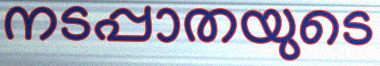
നടപ്പാതയുടെ